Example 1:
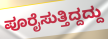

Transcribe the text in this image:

ಪೂರೈಸುತ್ತಿದ್ದದ್ದು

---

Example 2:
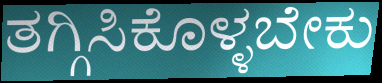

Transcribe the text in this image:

ತಗ್ಗಿಸಿಕೊಳ್ಳಬೇಕು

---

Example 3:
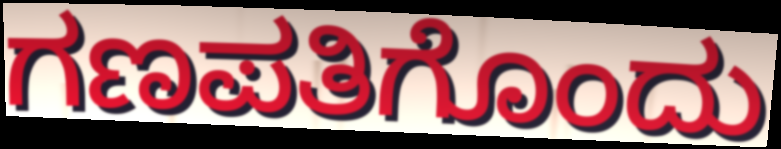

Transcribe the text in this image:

ಗಣಪತಿಗೊಂದು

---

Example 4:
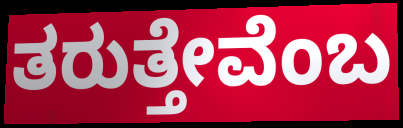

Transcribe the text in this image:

ತರುತ್ತೇವೆಂಬ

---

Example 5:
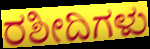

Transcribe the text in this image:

ರಶೀದಿಗಳು